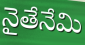
నైతేనేమి